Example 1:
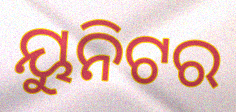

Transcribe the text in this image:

ୟୁନିଟର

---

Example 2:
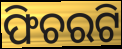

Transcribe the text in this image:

ଫିଚରଟି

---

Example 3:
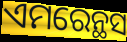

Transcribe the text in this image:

ଏମରେନ୍ଥସ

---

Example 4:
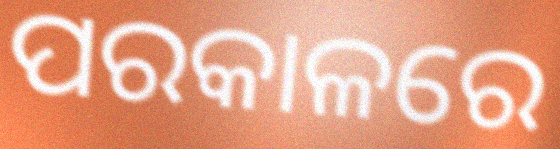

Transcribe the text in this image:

ପରକାଳରେ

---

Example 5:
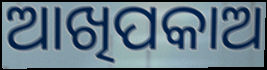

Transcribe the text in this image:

ଆଖିପକାଅ